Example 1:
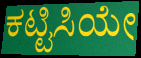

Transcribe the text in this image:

ಕಟ್ಟಿಸಿಯೇ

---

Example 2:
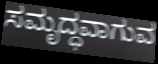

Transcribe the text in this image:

ಸಮೃದ್ಧವಾಗುವ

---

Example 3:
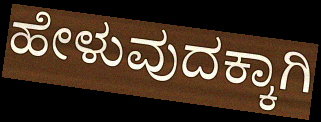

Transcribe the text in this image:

ಹೇಳುವುದಕ್ಕಾಗಿ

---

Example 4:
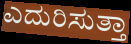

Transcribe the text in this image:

ಎದುರಿಸುತ್ತಾ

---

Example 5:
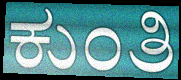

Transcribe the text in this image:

ಕುಂತಿ